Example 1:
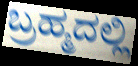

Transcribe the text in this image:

ಬ್ರಹ್ಮದಲ್ಲಿ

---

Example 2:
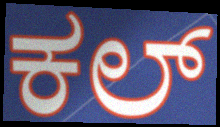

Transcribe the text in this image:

ಕಲ್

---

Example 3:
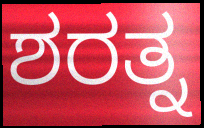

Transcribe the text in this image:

ಶರತ್ನ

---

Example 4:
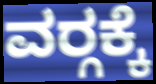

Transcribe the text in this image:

ವರ‍್ಗಕ್ಕೆ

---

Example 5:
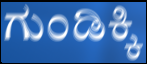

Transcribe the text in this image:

ಗುಂಡಿಕ್ಕಿ